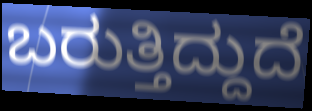
ಬರುತ್ತಿದ್ದುದೆ